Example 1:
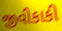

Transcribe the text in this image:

જીવીકાકી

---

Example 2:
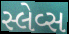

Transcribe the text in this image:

સ્લેવ્સ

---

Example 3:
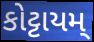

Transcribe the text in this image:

કોટ્ટાયમ્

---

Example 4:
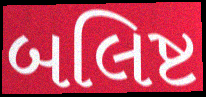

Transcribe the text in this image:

બલિષ્ટ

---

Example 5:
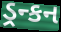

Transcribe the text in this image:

ડ્રન્કન